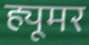
ह्यूमर